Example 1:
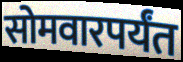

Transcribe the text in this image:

सोमवारपर्यंत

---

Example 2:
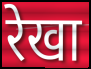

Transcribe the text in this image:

रेखा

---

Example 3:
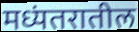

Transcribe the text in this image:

मध्यंतरातील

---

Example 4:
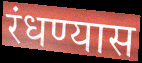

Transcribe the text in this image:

रंधण्यास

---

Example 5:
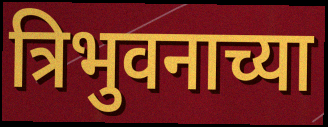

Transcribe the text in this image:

त्रिभुवनाच्या